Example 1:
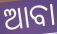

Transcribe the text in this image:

ଆବା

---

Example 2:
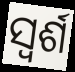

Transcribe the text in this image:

ସ୍ୱର୍ଶ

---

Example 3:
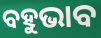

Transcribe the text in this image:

ବହୁଭାବ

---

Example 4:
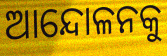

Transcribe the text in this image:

ଆନ୍ଦୋଳନକୁ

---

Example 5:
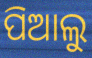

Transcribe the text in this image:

ପିଆଲୁ